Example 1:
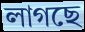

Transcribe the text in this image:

লাগছে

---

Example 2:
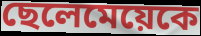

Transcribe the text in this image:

ছেলেমেয়েকে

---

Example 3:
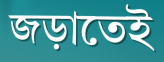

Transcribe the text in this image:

জড়াতেই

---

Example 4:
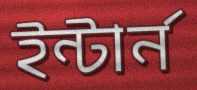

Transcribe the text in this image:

ইন্টার্ন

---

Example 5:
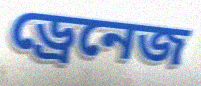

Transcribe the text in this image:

ড্রেনেজ